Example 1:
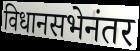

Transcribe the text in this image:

विधानसभेनंतर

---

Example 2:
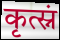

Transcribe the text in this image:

कृत्स्नं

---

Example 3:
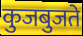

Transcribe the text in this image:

कुजबुजते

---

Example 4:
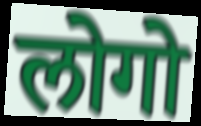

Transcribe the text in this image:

लोगो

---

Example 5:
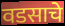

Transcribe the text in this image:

वडसाचे